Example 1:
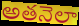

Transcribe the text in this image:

అతనెలా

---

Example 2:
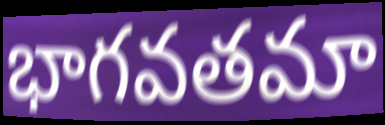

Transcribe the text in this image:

భాగవతమా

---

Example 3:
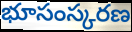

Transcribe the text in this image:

భూసంస్కరణ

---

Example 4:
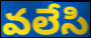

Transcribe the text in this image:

వలేసి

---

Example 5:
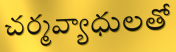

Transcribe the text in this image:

చర్మవ్యాధులతో